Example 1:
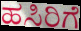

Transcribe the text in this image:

ಹಸಿರಿಗೆ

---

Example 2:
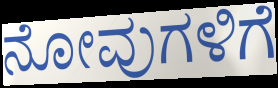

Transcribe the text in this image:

ನೋವುಗಳಿಗೆ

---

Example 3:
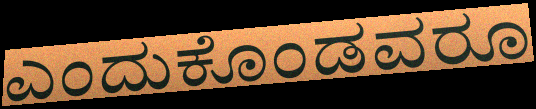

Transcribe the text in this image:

ಎಂದುಕೊಂಡವರೂ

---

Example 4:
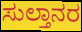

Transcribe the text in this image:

ಸುಲ್ತಾನರ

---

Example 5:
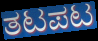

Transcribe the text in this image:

ತಟಪಟ